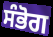
ਸੰਭੋਗ